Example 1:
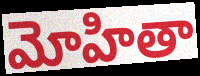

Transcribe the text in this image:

మోహితా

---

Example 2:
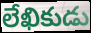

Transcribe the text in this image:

లేఖికుడు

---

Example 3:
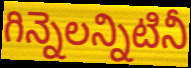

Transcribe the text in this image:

గిన్నెలన్నిటినీ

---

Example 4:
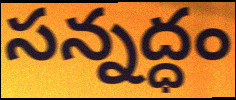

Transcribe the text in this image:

సన్నద్ధం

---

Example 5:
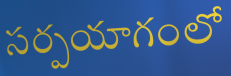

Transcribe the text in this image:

సర్పయాగంలో